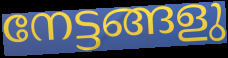
നേട്ടങ്ങളു